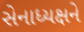
સેનાધ્યક્ષને